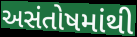
અસંતોષમાંથી